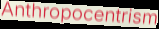
Anthropocentrism